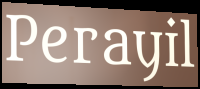
Perayil